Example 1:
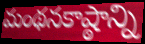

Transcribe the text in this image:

మంథనకాష్ఠాన్ని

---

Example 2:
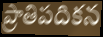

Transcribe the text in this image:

ప్రాతిపదికన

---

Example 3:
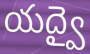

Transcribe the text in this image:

యద్వై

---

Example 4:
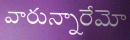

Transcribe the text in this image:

వారున్నారేమో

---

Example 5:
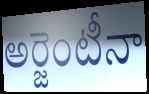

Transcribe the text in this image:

అర్జెంటీనా